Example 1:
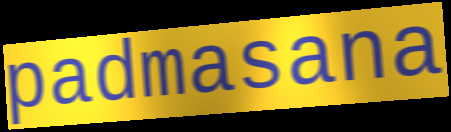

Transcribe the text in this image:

padmasana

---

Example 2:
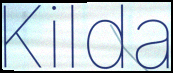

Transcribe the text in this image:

Kilda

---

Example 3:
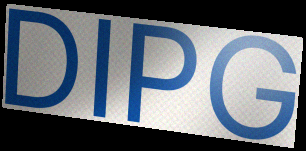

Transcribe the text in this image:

DIPG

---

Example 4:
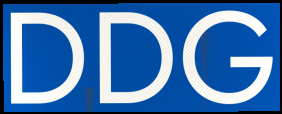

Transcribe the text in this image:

DDG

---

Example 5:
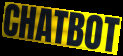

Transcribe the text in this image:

CHATBOT